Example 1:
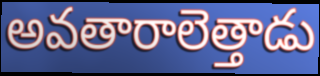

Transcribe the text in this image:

అవతారాలెత్తాడు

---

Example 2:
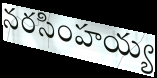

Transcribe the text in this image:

నరసింహయ్య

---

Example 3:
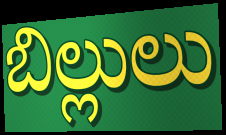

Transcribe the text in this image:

బిల్లులు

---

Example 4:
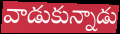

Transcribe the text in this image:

వాడుకున్నాడు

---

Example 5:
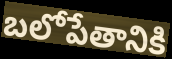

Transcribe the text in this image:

బలోపేతానికి